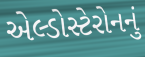
એલ્ડોસ્ટેરોનનું